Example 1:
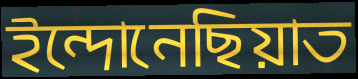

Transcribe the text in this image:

ইন্দোনেছিয়াত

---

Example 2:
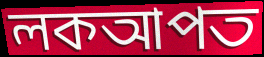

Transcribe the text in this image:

লকআপত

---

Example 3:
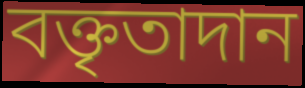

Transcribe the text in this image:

বক্তৃতাদান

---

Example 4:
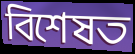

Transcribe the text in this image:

বিশেষত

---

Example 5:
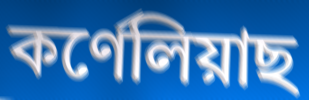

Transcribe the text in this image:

কৰ্ণেলিয়াছ